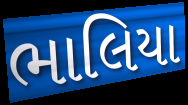
ભાલિયા